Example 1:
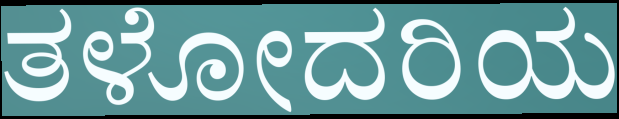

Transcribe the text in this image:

ತಳೋದರಿಯ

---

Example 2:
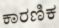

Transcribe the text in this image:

ಕಾರಣಿಕ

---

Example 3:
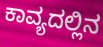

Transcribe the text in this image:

ಕಾವ್ಯದಲ್ಲಿನ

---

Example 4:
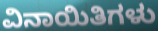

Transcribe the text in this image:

ವಿನಾಯಿತಿಗಳು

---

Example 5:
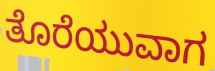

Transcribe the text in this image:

ತೊರೆಯುವಾಗ